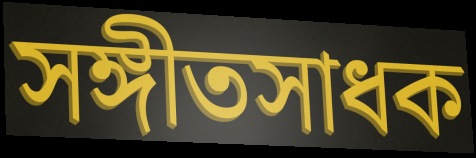
সঙ্গীতসাধক